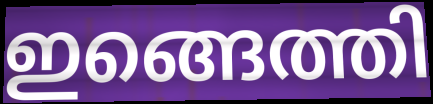
ഇങ്ങെത്തി